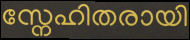
സ്നേഹിതരായി